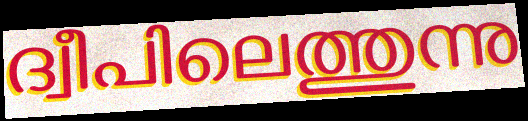
ദ്വീപിലെത്തുന്നു